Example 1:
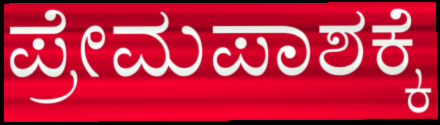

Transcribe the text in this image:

ಪ್ರೇಮಪಾಶಕ್ಕೆ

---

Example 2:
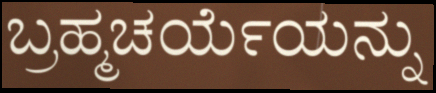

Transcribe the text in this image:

ಬ್ರಹ್ಮಚರ್ಯೆಯನ್ನು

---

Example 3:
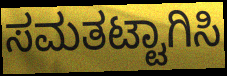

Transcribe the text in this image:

ಸಮತಟ್ಟಾಗಿಸಿ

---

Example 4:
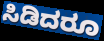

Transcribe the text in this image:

ಸಿಡಿದರೂ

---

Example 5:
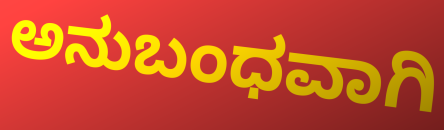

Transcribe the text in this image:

ಅನುಬಂಧವಾಗಿ